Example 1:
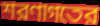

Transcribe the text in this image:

শরণাগতের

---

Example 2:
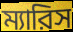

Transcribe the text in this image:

ম্যারিস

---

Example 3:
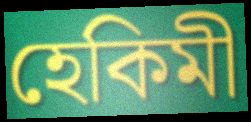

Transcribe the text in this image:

হেকিমী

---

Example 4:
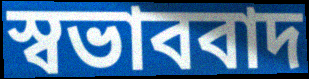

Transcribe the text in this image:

স্বভাববাদ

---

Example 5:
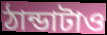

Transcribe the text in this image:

ঠান্ডাটাও